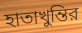
হাতাখুন্তির